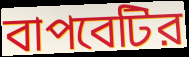
বাপবেটির